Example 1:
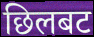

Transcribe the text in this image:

छिलबट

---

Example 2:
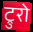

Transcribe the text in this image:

ट्रुरो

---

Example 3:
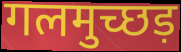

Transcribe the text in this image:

गलमुच्छड़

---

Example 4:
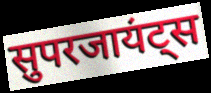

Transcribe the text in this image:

सुपरजायंट्स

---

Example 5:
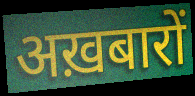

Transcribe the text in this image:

अख़बारों